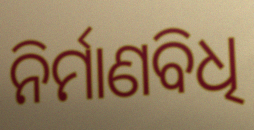
ନିର୍ମାଣବିଧି